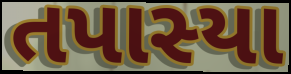
તપાસ્યા